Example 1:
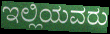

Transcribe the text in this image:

ಇಲ್ಲಿಯವರು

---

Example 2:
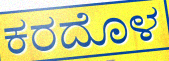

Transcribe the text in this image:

ಕರದೊಳ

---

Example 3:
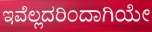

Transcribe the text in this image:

ಇವೆಲ್ಲದರಿಂದಾಗಿಯೇ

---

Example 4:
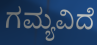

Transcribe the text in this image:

ಗಮ್ಯವಿದೆ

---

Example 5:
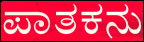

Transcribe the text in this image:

ಪಾತಕನು